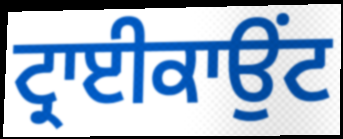
ਟ੍ਰਾਈਕਾਉਂਟ